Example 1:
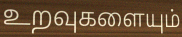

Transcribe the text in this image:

உறவுகளையும்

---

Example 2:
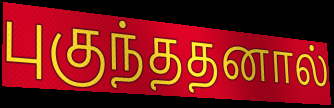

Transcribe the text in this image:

புகுந்ததனால்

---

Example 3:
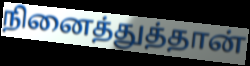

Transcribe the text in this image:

நினைத்துத்தான்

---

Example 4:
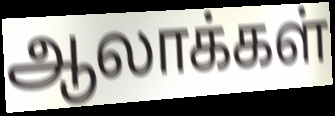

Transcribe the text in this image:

ஆலாக்கள்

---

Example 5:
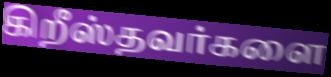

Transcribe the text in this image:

கிறீஸ்தவர்களை